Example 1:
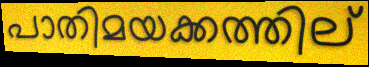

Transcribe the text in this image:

പാതിമയക്കത്തില്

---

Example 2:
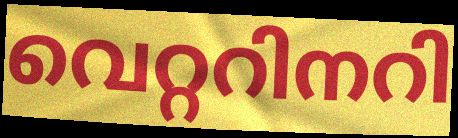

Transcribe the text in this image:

വെറ്ററിനറി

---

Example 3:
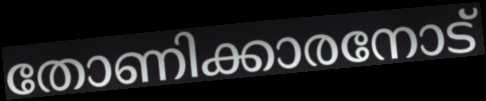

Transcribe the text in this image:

തോണിക്കാരനോട്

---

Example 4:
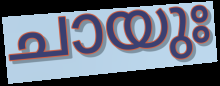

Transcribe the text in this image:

ചായുഃ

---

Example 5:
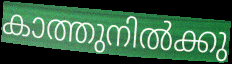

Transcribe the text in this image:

കാത്തുനിൽക്കു